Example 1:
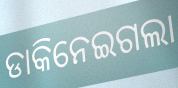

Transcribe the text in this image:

ଡାକିନେଇଗଲା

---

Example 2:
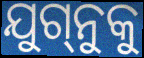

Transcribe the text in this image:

ଯୁଗ୍‌ନୁକୁ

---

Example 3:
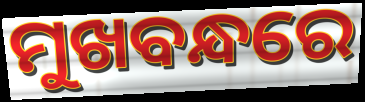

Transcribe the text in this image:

ମୁଖବନ୍ଧରେ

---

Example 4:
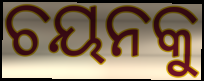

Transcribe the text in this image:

ଚୟନକୁ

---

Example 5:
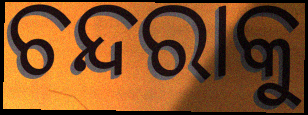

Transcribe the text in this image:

ଚନ୍ଦରାକୁ